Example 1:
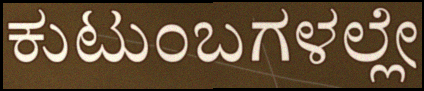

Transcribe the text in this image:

ಕುಟುಂಬಗಳಲ್ಲೇ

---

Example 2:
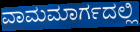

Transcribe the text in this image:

ವಾಮಮಾರ್ಗದಲ್ಲಿ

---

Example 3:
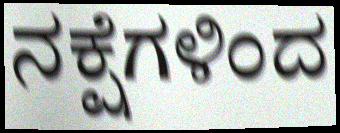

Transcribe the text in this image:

ನಕ್ಷೆಗಳಿಂದ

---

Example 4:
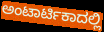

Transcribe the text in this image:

ಅಂಟಾರ್ಟಿಕಾದಲ್ಲಿ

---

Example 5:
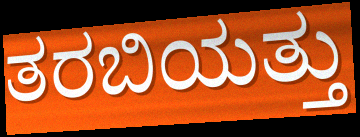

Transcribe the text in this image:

ತರಬಿಯತ್ತು